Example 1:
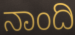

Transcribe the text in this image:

ನಾಂದಿ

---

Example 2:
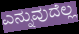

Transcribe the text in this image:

ಎನ್ನುವುದೆಲ್ಲ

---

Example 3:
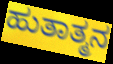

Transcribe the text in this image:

ಹುತಾತ್ಮನ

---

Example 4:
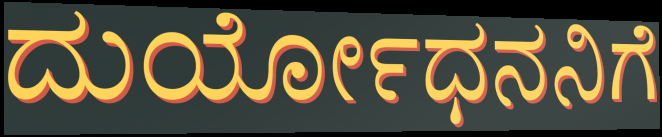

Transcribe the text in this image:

ದುರ್ಯೋಧನನಿಗೆ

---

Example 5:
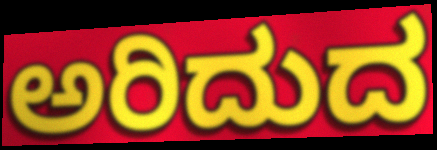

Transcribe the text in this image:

ಅರಿದುದ